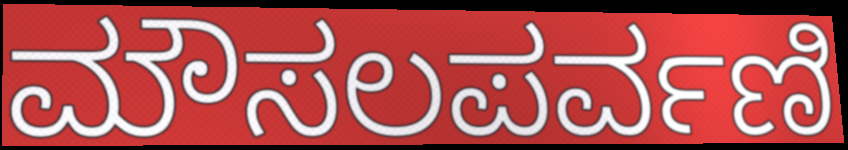
ಮೌಸಲಪರ್ವಣಿ